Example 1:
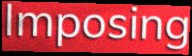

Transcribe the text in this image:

Imposing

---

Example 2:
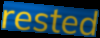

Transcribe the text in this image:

rested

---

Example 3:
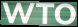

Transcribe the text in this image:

WTO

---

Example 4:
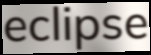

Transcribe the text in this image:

eclipse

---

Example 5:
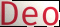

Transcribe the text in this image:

Deo